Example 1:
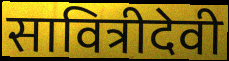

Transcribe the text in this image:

सावित्रीदेवी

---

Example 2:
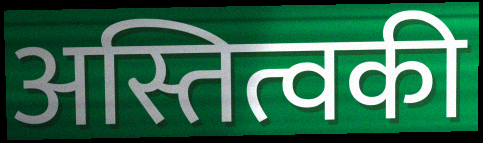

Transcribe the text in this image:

अस्तित्वकी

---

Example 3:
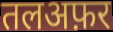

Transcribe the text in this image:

तलअफ़र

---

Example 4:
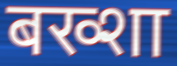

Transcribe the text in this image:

बख्शा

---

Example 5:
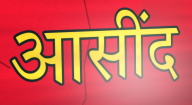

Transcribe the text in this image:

आसींद